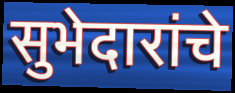
सुभेदारांचे